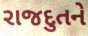
રાજદુતને